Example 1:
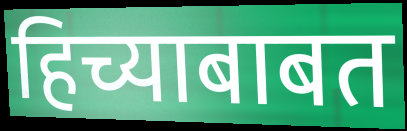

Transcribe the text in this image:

हिच्याबाबत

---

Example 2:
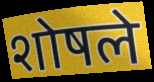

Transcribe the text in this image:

शोषले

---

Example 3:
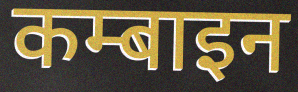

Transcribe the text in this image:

कम्बाइन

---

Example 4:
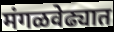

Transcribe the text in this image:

मंगळवेढ्यात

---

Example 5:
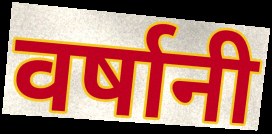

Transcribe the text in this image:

वर्षानी